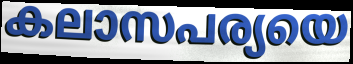
കലാസപര്യയെ